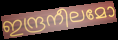
ഇന്ദ്രനീലമോ